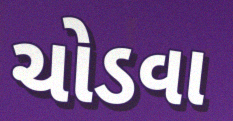
ચોડવા